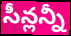
సీన్లన్నీ